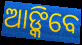
ଆଙ୍କିବେ